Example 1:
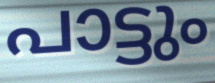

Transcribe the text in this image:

പാട്ടും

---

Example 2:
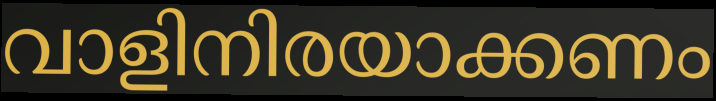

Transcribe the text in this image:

വാളിനിരയാക്കണം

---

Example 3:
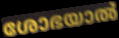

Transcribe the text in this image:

ശോഭയാൽ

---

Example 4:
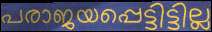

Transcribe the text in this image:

പരാജയപ്പെട്ടിട്ടില്ല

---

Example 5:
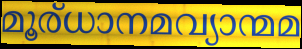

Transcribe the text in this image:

മൂര്ധാനമവ്യാന്മമ